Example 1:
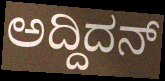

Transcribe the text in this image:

ಅದ್ದಿದನ್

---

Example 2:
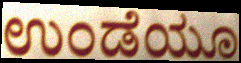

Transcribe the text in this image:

ಉಂಡೆಯೂ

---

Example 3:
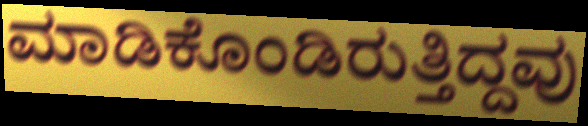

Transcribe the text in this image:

ಮಾಡಿಕೊಂಡಿರುತ್ತಿದ್ದವು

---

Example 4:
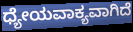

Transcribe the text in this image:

ಧ್ಯೇಯವಾಕ್ಯವಾಗಿದೆ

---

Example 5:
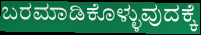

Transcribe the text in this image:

ಬರಮಾಡಿಕೊಳ್ಳುವುದಕ್ಕೆ